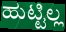
ಹುಟ್ಟಿಲ್ಲ